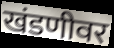
खंडणीवर